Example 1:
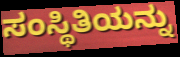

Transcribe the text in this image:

ಸಂಸ್ಥಿತಿಯನ್ನು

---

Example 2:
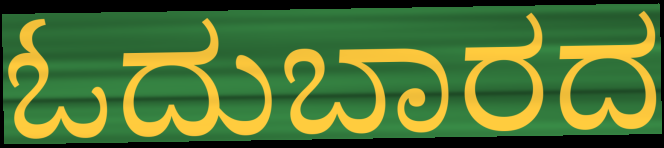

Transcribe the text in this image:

ಓದುಬಾರದ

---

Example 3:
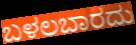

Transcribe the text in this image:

ಬಳಲಬಾರದು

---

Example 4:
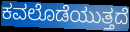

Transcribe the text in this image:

ಕವಲೊಡೆಯುತ್ತದೆ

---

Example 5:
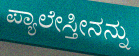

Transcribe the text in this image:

ಪ್ಯಾಲೇಸ್ತೀನನ್ನು